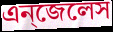
এন্জেলেস